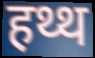
हथ्थ